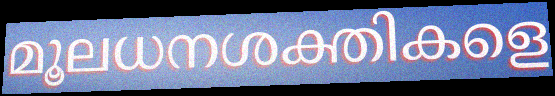
മൂലധനശക്തികളെ